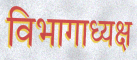
विभागाध्यक्ष